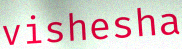
vishesha